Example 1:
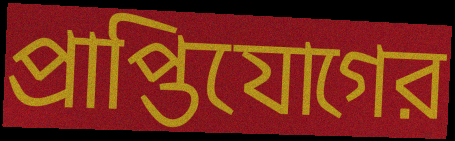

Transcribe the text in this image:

প্রাপ্তিযোগের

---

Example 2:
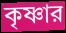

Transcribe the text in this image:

কৃষ্ণার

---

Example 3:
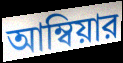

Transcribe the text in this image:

আম্বিয়ার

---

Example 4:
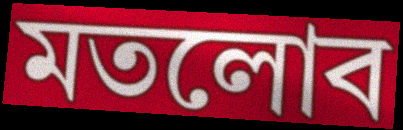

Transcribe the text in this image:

মতলোব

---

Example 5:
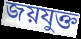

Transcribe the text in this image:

জয়যুক্ত